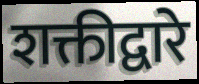
शक्तीद्वारे